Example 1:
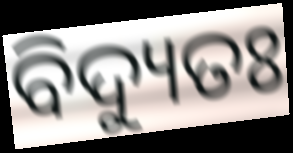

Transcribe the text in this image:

ବିଦ୍ୟୁତଃ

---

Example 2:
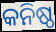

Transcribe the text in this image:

କନିଷ୍ଠ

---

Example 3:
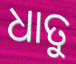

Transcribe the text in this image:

ଧାତୁ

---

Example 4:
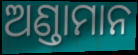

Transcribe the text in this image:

ଅଣ୍ଡାମାନ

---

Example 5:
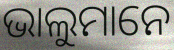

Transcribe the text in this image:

ଭାଲୁମାନେ